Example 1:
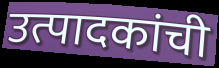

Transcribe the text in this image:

उत्पादकांची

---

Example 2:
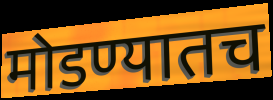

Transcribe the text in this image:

मोडण्यातच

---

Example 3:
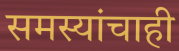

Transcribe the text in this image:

समस्यांचाही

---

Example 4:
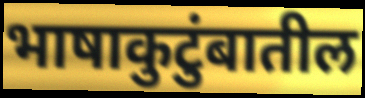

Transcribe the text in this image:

भाषाकुटुंबातील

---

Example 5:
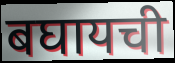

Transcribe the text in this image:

बघायची